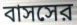
বাসসের